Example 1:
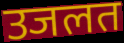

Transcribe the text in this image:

उजलत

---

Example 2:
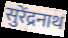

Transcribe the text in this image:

सुरेंद्रनाथ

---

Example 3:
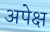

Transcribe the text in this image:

अपेक्ष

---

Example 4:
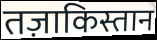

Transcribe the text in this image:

तज़ाकिस्तान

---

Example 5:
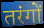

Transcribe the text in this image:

तरंगों